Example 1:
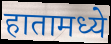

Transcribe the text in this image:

हातामध्ये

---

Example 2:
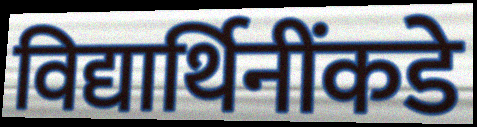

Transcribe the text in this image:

विद्यार्थिनींकडे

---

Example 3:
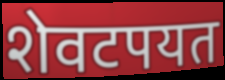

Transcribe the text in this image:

शेवटपयत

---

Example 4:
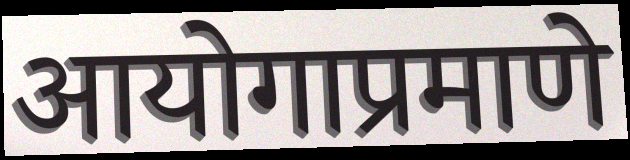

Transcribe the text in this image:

आयोगाप्रमाणे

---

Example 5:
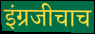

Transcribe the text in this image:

इंग्रजीचाच